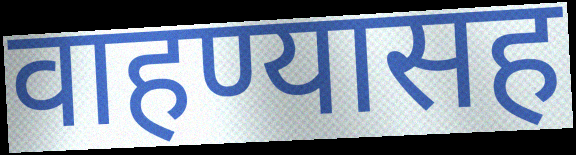
वाहण्यासह